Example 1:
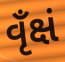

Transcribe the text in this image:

વૃઁક્ષં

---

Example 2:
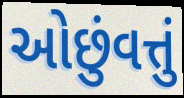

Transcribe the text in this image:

ઓછુંવત્તું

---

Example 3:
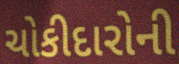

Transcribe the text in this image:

ચોકીદારોની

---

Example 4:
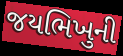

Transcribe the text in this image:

જયભિખુની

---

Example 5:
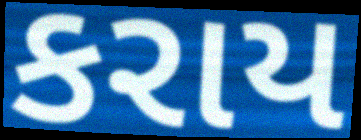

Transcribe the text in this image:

કરાય